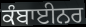
ਕੰਬਾਈਨਰ